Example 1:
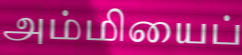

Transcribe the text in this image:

அம்மியைப்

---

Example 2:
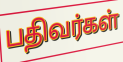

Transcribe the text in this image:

பதிவர்கள்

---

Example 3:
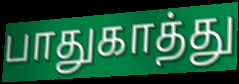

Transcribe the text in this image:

பாதுகாத்து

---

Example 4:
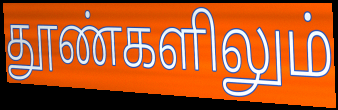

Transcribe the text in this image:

தூண்களிலும்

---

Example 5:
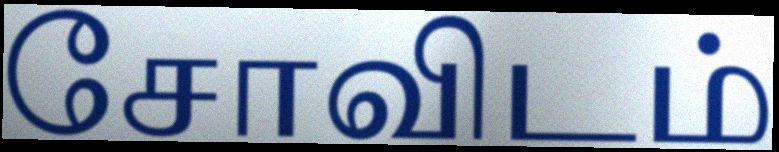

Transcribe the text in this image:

சோவிடம்